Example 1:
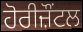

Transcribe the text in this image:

ਹੋਰੀਜ਼ੌਂਟਲ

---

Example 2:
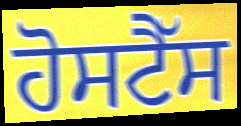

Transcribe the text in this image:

ਹੋਸਟੈੱਸ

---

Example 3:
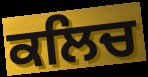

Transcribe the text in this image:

ਕਲਿਚ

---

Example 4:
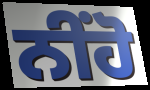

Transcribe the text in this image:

ਨੀਂਹੋ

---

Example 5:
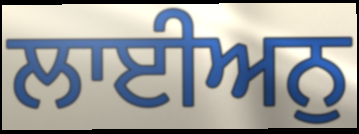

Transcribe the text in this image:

ਲਾਈਅਨੁ